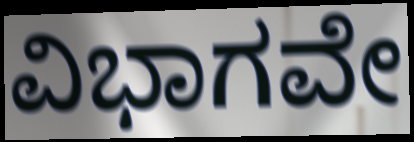
ವಿಭಾಗವೇ